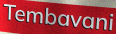
Tembavani